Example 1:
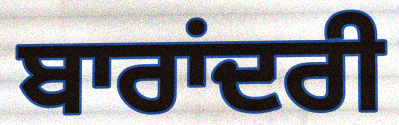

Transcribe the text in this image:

ਬਾਰਾਂਦਰੀ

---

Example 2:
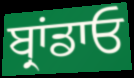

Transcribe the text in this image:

ਬ੍ਰਾਂਡਾਓ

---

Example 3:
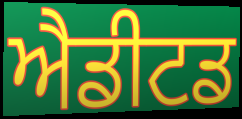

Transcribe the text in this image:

ਐਡੀਟਡ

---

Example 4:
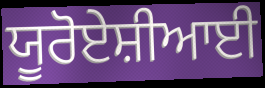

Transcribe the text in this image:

ਯੂਰੋਏਸ਼ੀਆਈ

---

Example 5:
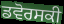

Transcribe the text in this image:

ਡਵੋਰਸਕੀ